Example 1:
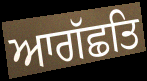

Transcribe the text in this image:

ਆਗੱਛਤਿ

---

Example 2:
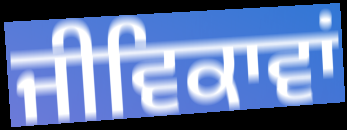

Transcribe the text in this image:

ਜੀਵਿਕਾਵਾਂ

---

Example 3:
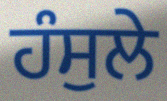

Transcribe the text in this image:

ਹੰਸੁਲੇ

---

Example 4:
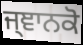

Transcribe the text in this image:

ਜ੍ਞਾਨਕੋ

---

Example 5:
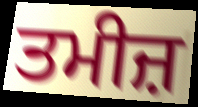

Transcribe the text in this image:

ਤਮੀਜ਼